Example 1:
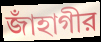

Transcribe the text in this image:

জাঁহাগীর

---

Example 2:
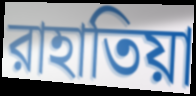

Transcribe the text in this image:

রাহাতিয়া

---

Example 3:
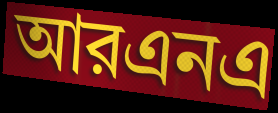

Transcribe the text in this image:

আরএনএ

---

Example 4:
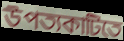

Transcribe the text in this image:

উপত্যকাটিতে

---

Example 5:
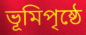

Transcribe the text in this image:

ভূমিপৃষ্ঠে